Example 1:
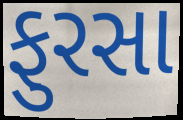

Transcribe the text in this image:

ફુરસા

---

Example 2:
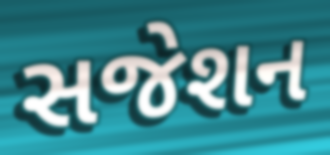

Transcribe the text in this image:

સજેશન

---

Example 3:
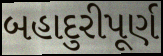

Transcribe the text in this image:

બહાદુરીપૂર્ણ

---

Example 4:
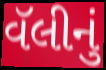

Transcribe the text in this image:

વૅલીનું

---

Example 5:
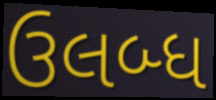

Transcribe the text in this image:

ઉલબ્ધ